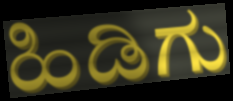
ಹಿಡಿಗು